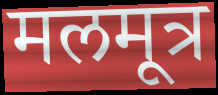
मलमूत्र